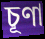
চূণা